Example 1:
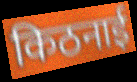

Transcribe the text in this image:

किठनाई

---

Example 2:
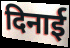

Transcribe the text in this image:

दिनाई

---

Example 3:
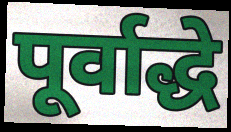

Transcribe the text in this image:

पूर्वाद्धे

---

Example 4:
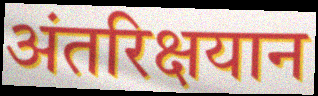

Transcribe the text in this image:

अंतरिक्षयान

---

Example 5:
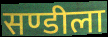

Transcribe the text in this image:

सण्डीला